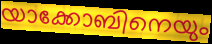
യാക്കോബിനെയും